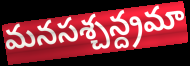
మనసశ్చన్ద్రమా